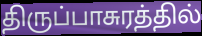
திருப்பாசுரத்தில்